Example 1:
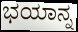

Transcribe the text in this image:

ಭಯಾನ್ನ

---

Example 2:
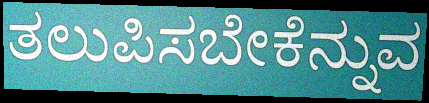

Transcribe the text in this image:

ತಲುಪಿಸಬೇಕೆನ್ನುವ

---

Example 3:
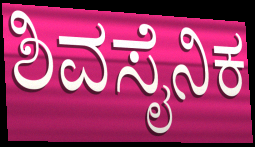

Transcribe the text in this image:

ಶಿವಸೈನಿಕ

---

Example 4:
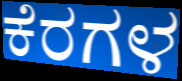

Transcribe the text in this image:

ಕೆರಗಳ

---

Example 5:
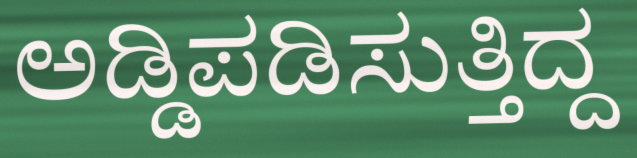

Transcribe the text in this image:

ಅಡ್ಡಿಪಡಿಸುತ್ತಿದ್ದ